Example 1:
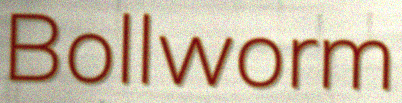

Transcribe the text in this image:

Bollworm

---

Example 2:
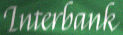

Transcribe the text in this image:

Interbank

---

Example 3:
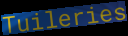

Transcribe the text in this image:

Tuileries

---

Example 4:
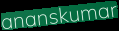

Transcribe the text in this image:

ananskumar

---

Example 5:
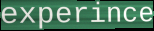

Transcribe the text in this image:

experince